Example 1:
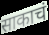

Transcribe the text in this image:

साकाचं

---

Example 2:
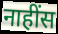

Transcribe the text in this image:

नाहींस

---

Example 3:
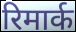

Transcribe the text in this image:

रिमार्क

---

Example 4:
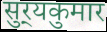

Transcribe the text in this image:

सुर्यकुमार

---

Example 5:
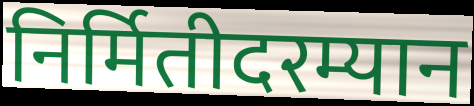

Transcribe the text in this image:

निर्मितीदरम्यान